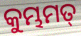
କୁମ୍ଭମତ୍